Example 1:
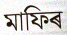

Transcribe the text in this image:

মাফিৰ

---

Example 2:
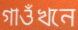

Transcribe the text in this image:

গাওঁখনে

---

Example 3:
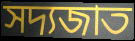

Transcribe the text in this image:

সদ্যজাত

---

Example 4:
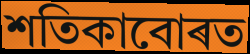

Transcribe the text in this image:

শতিকাবোৰত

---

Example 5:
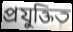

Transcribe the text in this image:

প্ৰযুক্তিত